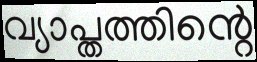
വ്യാപ്തത്തിന്റെ